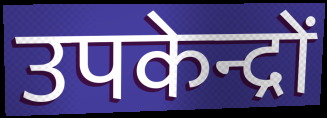
उपकेन्द्रों